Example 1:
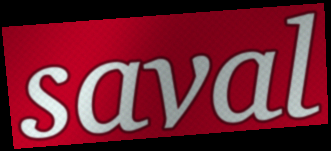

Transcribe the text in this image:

saval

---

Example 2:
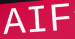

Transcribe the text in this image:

AIF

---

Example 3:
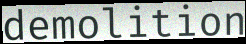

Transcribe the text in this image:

demolition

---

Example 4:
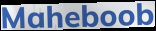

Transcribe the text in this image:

Maheboob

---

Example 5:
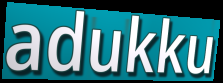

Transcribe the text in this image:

adukku